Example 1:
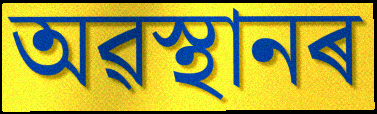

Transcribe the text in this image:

অৱস্থানৰ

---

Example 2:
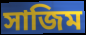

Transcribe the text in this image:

সাজিম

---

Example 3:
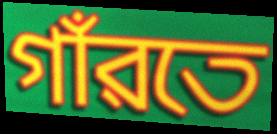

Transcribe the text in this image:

গাঁৱতে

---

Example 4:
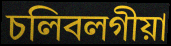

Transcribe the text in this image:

চলিবলগীয়া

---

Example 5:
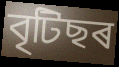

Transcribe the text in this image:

বৃটিছৰ